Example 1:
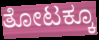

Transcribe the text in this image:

ತೋಟಕ್ಕೂ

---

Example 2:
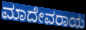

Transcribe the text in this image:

ಮಾದೇವರಾಯ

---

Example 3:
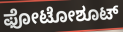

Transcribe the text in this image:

ಫೋಟೋಶೂಟ್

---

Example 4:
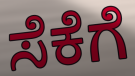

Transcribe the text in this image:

ಸೆಕೆಗೆ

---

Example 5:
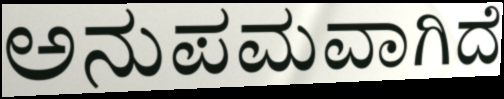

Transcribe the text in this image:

ಅನುಪಮವಾಗಿದೆ